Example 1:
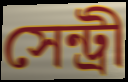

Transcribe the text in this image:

সেন্ট্রী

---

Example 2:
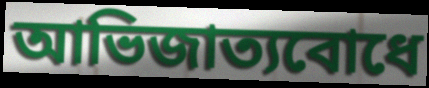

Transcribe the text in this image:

আভিজাত্যবোধে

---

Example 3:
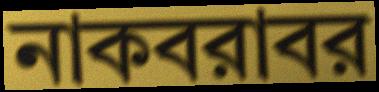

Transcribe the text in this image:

নাকবরাবর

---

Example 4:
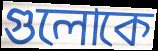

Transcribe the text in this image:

গুলোকে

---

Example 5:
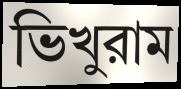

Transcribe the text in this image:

ভিখুরাম